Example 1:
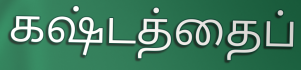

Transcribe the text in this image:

கஷ்டத்தைப்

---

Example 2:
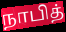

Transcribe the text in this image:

நாபித்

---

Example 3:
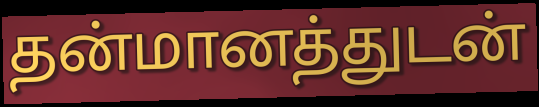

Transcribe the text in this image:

தன்மானத்துடன்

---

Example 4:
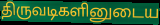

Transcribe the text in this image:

திருவடிகளினுடைய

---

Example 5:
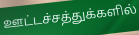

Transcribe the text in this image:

ஊட்டச்சத்துக்களில்